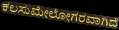
ಕಲಸುಮೇಲೋಗರವಾಗಿದೆ